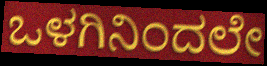
ಒಳಗಿನಿಂದಲೇ